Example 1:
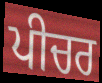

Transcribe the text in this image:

ਪੀਚਰ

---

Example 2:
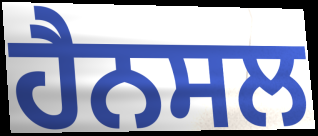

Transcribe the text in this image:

ਹੈਨਸਲ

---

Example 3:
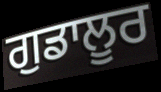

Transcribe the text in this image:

ਗੁਡਾਲੂਰ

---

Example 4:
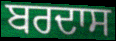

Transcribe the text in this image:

ਬਰਦਾਸ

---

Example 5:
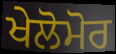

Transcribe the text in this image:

ਖੇਲੋਮੋਰ